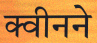
क्वीनने